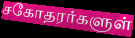
சகோதரர்களுள்